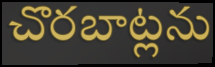
చొరబాట్లను